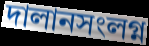
দালানসংলগ্ন